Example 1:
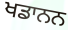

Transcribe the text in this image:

ਖਡਾਨਨ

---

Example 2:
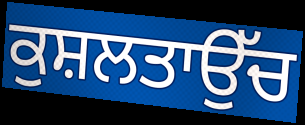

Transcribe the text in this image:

ਕੁਸ਼ਲਤਾਉੱਚ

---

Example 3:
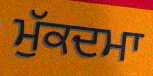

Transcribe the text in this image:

ਮੁੱਕਦਮਾ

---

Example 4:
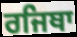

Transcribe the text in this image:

ਰਜਿਥਾ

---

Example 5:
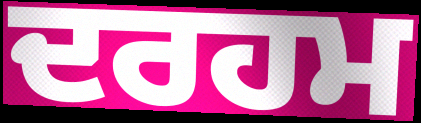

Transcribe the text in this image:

ਦਰਹਮ